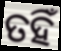
ତହିଁ